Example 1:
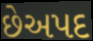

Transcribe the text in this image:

છેઅપદ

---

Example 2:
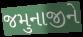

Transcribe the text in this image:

જમુનાજીને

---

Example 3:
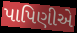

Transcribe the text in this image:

પાપિણીએ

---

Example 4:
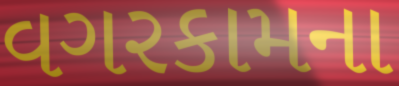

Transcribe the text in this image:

વગરકામના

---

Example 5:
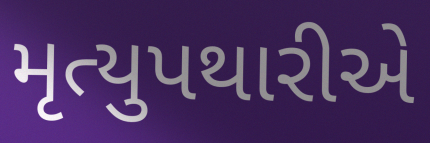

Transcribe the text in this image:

મૃત્યુપથારીએ